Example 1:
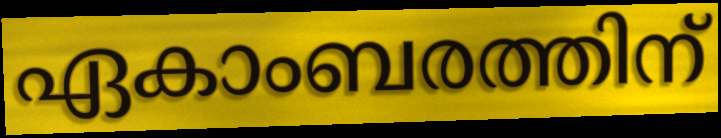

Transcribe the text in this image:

ഏകാംബരത്തിന്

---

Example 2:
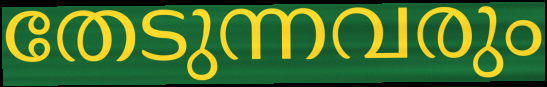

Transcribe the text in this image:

തേടുന്നവരും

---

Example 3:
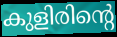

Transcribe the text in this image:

കുളിരിന്റെ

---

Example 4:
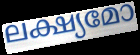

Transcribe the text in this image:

ലക്ഷ്യമോ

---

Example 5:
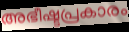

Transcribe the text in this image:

അഭീഷ്ടപ്രകാരം